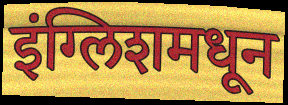
इंग्लिशमधून